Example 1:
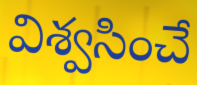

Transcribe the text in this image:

విశ్వసించే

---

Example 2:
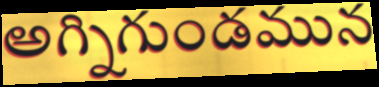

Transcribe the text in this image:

అగ్నిగుండమున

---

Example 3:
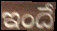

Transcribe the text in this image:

ఇందే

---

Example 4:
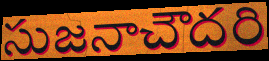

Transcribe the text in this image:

సుజనాచౌదరి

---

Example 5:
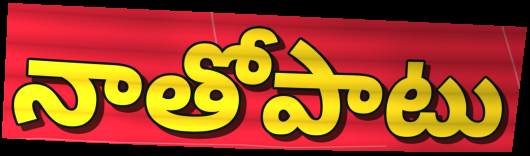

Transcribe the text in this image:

నాతోపాటు